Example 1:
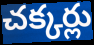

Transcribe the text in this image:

చక్కర్లు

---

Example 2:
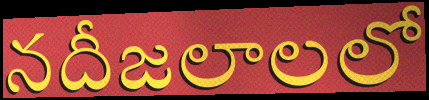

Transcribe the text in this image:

నదీజలాలలో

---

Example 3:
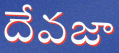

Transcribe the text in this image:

దేవజా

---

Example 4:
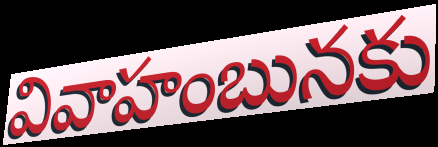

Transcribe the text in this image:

వివాహంబునకు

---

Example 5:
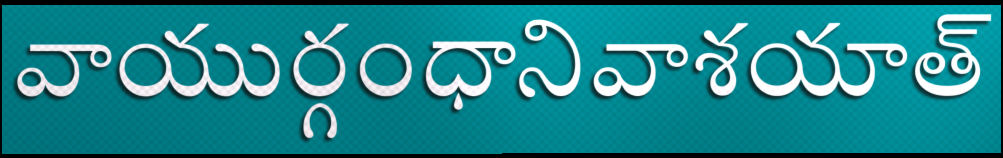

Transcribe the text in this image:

వాయుర్గంధానివాశయాత్